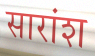
सारांश